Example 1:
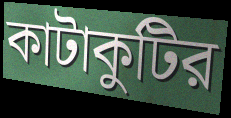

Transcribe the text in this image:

কাটাকুটির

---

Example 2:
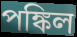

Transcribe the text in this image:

পঙ্কিল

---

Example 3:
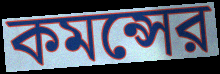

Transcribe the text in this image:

কমন্সের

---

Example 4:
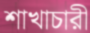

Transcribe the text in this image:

শাখাচারী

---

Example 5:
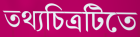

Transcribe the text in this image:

তথ্যচিত্রটিতে